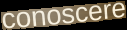
conoscere